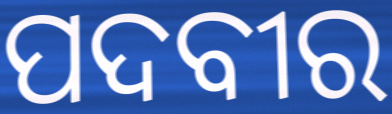
ପଦବୀର